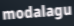
modalagu